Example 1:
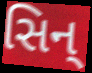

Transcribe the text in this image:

સિન્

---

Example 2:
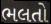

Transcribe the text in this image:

ભલતો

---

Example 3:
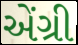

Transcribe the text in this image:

એંગ્રી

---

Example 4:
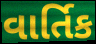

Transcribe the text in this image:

વાર્તિક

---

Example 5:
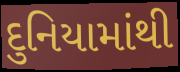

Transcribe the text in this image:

દુનિયામાંથી